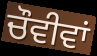
ਚੌਵੀਵਾਂ